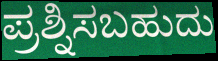
ಪ್ರಶ್ನಿಸಬಹುದು